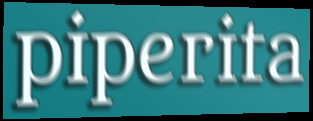
piperita